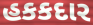
હકકદાર